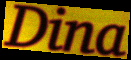
Dina